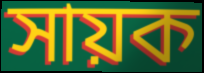
সায়ক